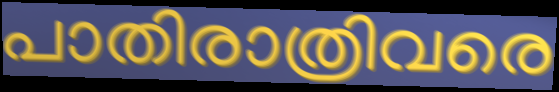
പാതിരാത്രിവരെ